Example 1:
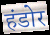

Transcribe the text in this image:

हंडोर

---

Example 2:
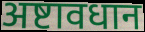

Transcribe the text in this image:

अष्टावधान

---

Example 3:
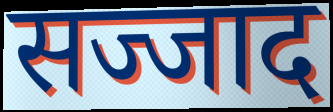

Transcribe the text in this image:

सज्जाद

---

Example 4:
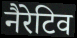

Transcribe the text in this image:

नैरेटिव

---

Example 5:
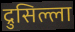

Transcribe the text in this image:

द्रुसिल्ला